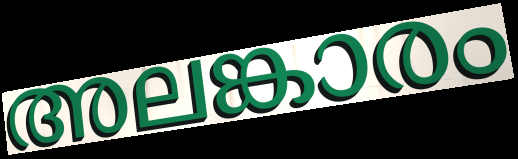
അലങ്കാരം